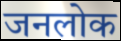
जनलोक